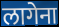
लागेना